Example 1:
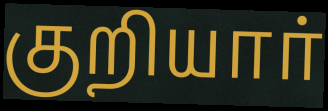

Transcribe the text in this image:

குறியார்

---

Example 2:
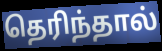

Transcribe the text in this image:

தெரிந்தால்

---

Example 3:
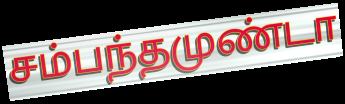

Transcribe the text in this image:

சம்பந்தமுண்டா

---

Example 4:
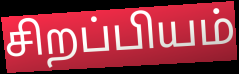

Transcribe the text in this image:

சிறப்பியம்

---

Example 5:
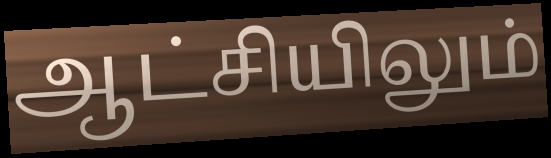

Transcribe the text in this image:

ஆட்சியிலும்